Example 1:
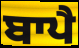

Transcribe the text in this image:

ਬਾਪੈ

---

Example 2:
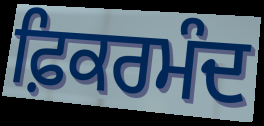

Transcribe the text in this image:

ਫ਼ਿਕਰਮੰਦ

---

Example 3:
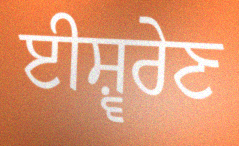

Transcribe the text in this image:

ਈਸ਼੍ਵਰੇਣ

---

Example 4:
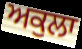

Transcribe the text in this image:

ਅਕੁਲਾ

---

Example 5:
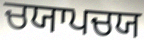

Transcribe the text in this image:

ਚਯਾਪਚਯ